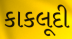
કાકલૂદી